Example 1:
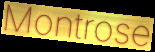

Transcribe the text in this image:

Montrose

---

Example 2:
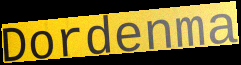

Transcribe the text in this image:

Dordenma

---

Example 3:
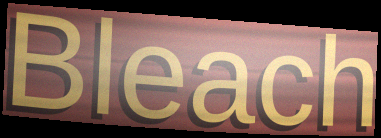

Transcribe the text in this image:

Bleach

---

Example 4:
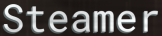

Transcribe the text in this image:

Steamer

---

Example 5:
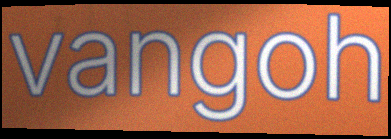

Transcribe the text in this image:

vangoh